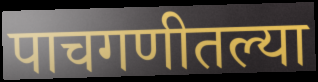
पाचगणीतल्या